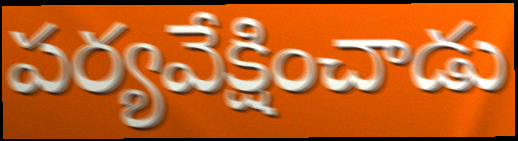
పర్యవేక్షించాడు